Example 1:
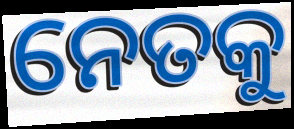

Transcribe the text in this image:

ନେତକୁ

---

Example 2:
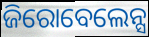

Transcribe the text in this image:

ଜିରୋବେଲେନ୍ସ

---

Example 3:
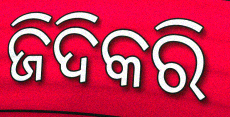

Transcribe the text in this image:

ଜିଦିକରି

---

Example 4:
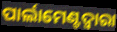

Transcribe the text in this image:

ପାର୍ଲାମେଣ୍ଟଦ୍ୱାରା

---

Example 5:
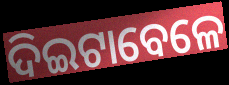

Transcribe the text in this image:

ଦିଇଟାବେଳେ